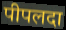
पीपलदा